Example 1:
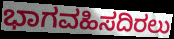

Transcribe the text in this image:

ಭಾಗವಹಿಸದಿರಲು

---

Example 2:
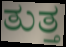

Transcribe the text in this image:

ತುತ್ತ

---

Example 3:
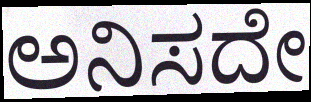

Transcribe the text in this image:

ಅನಿಸದೇ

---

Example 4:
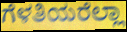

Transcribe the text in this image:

ಗೆಳತಿಯರೆಲ್ಲಾ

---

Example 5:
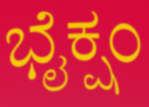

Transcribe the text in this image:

ಭೈಕ್ಷಂ